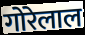
गोरेलाल